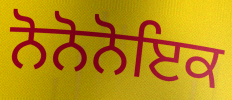
ਨੋਨੋਨੋਇਕ